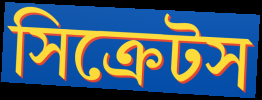
সিক্রেটস